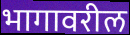
भागावरील